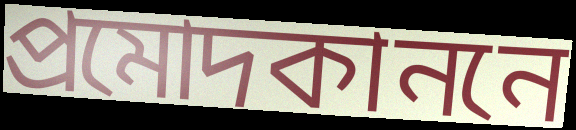
প্রমোদকাননে